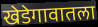
खेडेगावातला